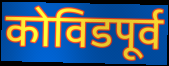
कोविडपूर्व